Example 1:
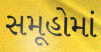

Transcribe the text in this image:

સમૂહોમાં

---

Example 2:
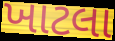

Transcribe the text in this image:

ખાટલા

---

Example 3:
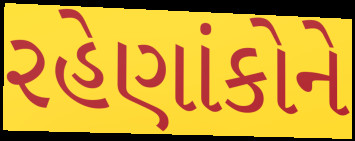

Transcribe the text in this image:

રહેણાંકોને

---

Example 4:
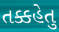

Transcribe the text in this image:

તક્કહેતુ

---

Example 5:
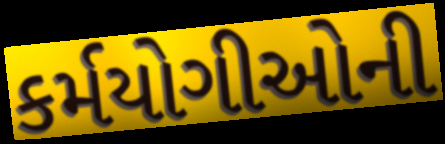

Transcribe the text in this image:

કર્મયોગીઓની